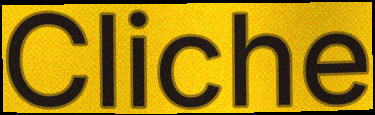
Cliche